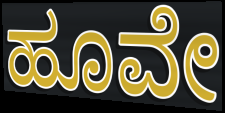
ಹೂವೇ